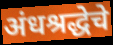
अंधश्रद्धेचे